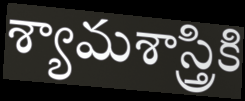
శ్యామశాస్త్రికి